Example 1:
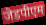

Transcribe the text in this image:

जेडपीएम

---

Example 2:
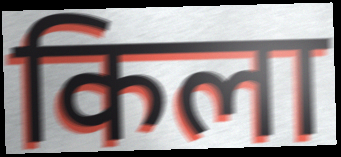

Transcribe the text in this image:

किला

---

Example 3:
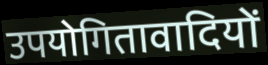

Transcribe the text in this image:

उपयोगितावादियों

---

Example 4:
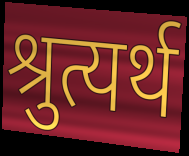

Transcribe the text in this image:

श्रुत्यर्थ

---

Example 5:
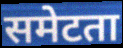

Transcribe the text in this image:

समेटता